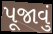
પૂજાવું